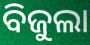
ବିଜୁଲା